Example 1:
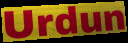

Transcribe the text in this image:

Urdun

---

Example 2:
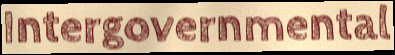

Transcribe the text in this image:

Intergovernmental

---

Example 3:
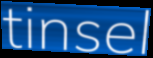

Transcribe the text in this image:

tinsel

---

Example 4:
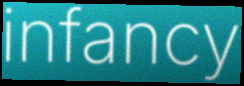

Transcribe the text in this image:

infancy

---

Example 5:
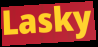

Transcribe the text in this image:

Lasky